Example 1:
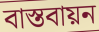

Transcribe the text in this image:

বাস্তবায়ন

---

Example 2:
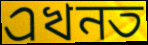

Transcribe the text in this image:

এখনত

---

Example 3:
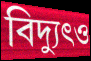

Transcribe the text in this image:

বিদ্যুৎও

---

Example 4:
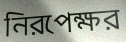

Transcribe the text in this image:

নিরপেক্ষর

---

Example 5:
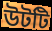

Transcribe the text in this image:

উটটি